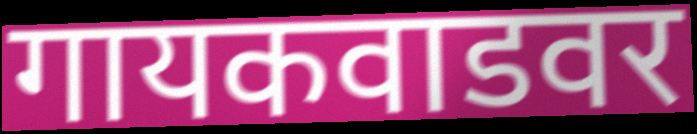
गायकवाडवर